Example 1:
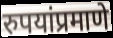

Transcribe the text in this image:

रुपयांप्रमाणे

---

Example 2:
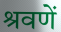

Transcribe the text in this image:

श्रवणें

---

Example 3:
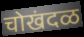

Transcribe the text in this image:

चोखंदळ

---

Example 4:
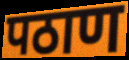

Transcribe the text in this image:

पठाण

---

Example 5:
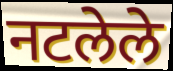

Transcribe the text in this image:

नटलेले